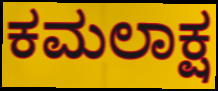
ಕಮಲಾಕ್ಷ